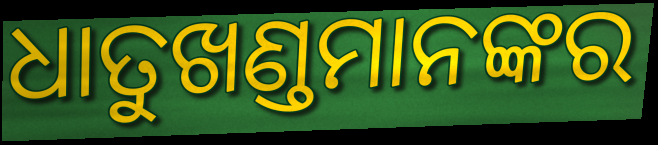
ଧାତୁଖଣ୍ଡମାନଙ୍କର